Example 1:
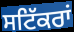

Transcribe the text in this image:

ਸਟਿੱਕਰਾਂ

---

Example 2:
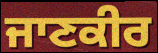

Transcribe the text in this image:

ਜਾਣਕੀਰ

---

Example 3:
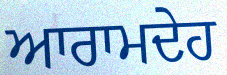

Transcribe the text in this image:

ਆਰਾਮਦੇਹ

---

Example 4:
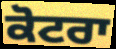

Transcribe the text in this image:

ਕੋਟਰਾ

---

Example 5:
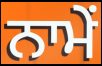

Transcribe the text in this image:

ਨਾਮੇਂ